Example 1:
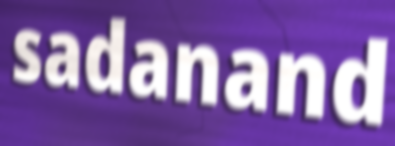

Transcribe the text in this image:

sadanand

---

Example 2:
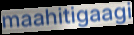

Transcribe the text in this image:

maahitigaagi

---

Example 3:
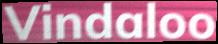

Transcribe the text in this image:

Vindaloo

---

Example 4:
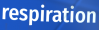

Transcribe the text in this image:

respiration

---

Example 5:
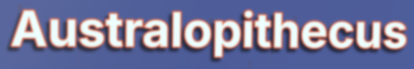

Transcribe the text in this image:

Australopithecus